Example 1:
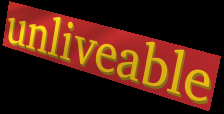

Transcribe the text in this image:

unliveable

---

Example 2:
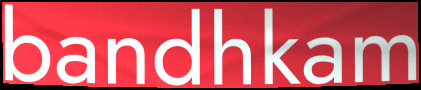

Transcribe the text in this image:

bandhkam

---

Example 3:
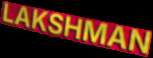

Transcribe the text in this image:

LAKSHMAN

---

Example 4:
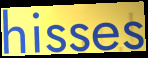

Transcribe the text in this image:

hisses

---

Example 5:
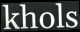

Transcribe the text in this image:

khols